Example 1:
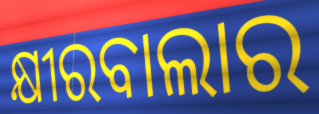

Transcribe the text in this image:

କ୍ଷୀରବାଲାର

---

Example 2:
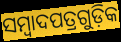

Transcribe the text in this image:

ସମ୍ୱାଦପତ୍ରଗୁଡ଼ିକ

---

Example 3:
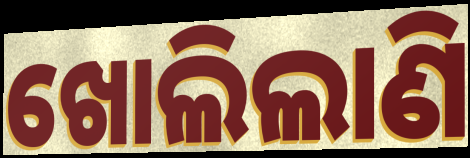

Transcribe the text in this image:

ଖୋଲିଲାଣି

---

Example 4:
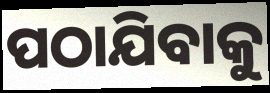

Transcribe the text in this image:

ପଠାଯିବାକୁ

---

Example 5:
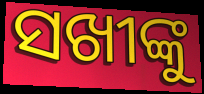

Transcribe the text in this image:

ସଖୀଙ୍କୁ